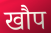
खौप